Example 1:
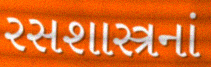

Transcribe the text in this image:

રસશાસ્ત્રનાં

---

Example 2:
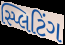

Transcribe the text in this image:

સ્પ્લિટિંગ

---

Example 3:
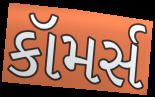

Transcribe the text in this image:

કૉમર્સ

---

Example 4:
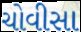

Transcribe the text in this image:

ચોવીસા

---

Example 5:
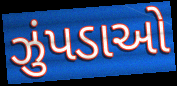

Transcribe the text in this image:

ઝુંપડાઓ